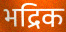
भद्रिक